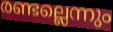
രണ്ടല്ലെന്നും